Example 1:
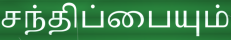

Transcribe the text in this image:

சந்திப்பையும்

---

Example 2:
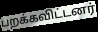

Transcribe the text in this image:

பறக்கவிட்டனர்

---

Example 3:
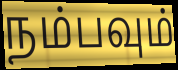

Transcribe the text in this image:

நம்பவும்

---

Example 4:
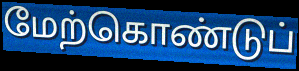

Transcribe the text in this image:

மேற்கொண்டுப்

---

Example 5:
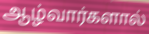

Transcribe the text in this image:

ஆழ்வார்களால்